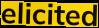
elicited